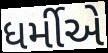
ધર્મીએ